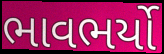
ભાવભર્યો